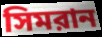
সিমরান